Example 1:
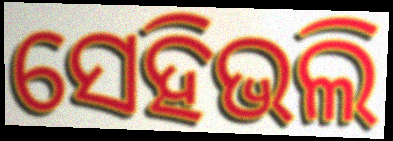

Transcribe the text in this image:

ସେହିଭଲି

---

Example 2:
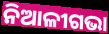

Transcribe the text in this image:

ନିଆଳୀଗଭା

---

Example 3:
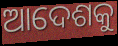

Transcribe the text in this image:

ଆଦେଶକୁ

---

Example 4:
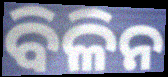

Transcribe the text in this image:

ବିଳିନ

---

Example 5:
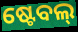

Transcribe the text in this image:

ଷ୍ଟେବଲ୍